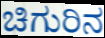
ಚಿಗುರಿನ